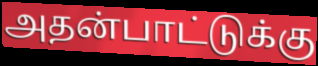
அதன்பாட்டுக்கு